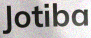
Jotiba